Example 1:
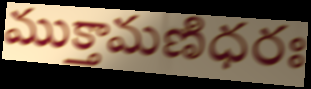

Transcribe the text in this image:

ముక్తామణిధరః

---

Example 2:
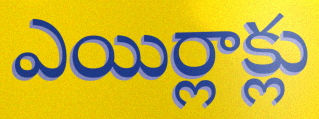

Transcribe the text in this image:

ఎయిర్లాక్లు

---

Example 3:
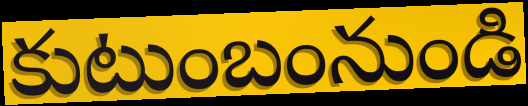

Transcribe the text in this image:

కుటుంబంనుండి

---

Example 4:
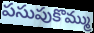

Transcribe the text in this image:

పసుపుకొమ్ము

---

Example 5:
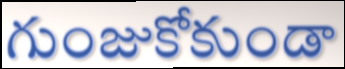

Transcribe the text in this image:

గుంజుకోకుండా